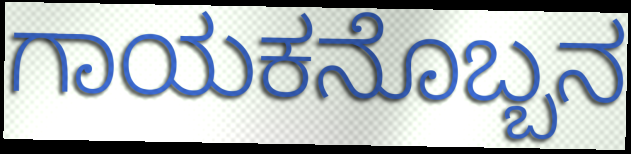
ಗಾಯಕನೊಬ್ಬನ